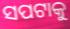
ସପଟାକୁ